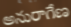
అనురాగేణ